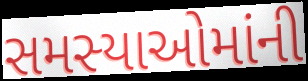
સમસ્યાઓમાંની